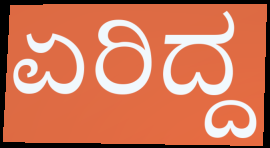
ಏರಿದ್ದ